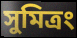
সুমিত্রং